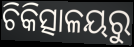
ଚିକିତ୍ସାଳୟରୁ